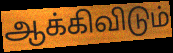
ஆக்கிவிடும்